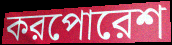
করপোরেশ